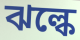
ঝল্কে